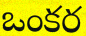
ఒంకర